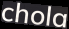
chola